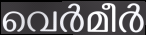
വെർമീർ